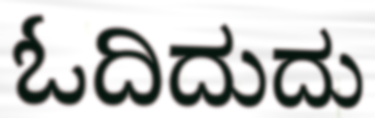
ಓದಿದುದು